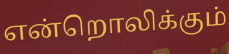
என்றொலிக்கும்